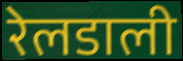
रेलडाली